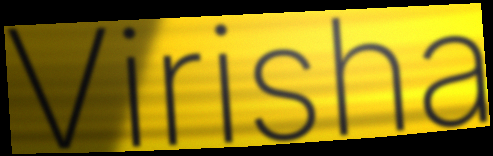
Virisha